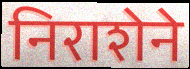
निराशेने